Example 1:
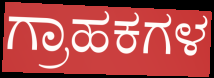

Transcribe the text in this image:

ಗ್ರಾಹಕಗಳ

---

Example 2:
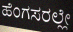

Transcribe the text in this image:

ಹೆಂಗಸರಲ್ಲೇ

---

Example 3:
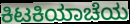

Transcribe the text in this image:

ಕಿಟಕಿಯಾಚೆಯ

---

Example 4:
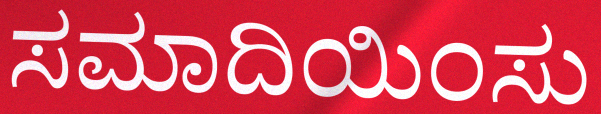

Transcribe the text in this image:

ಸಮಾದಿಯಿಂಸು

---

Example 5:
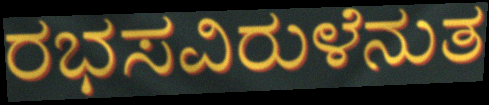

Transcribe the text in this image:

ರಭಸವಿರುಳೆನುತ